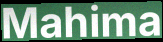
Mahima